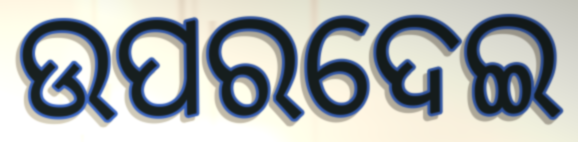
ଉପରଦେଇ